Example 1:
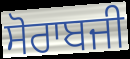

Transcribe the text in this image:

ਸੋਰਾਬਜੀ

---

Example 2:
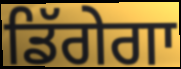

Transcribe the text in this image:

ਡਿੱਗੇਗਾ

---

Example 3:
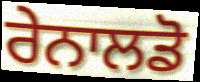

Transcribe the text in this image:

ਰੇਨਾਲਡੋ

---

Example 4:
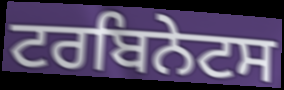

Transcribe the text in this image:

ਟਰਬਿਨੇਟਸ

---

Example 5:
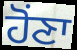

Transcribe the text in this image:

ਹੋਂਣਾ